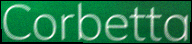
Corbetta